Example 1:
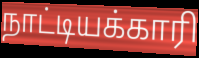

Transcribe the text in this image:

நாட்டியக்காரி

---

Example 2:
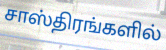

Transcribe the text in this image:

சாஸ்திரங்களில்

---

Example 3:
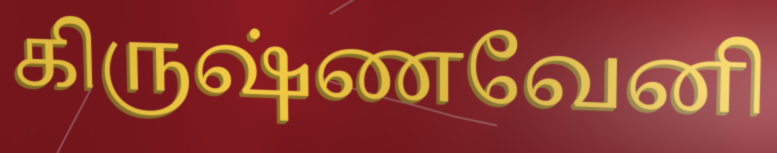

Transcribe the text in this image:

கிருஷ்ணவேனி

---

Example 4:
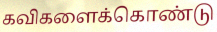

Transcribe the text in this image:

கவிகளைக்கொண்டு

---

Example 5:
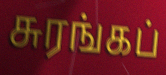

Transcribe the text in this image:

சுரங்கப்